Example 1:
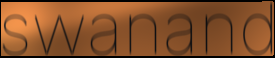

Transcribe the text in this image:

swanand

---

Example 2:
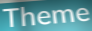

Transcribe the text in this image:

Theme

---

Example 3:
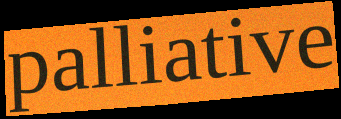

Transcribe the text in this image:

palliative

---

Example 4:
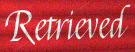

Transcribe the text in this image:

Retrieved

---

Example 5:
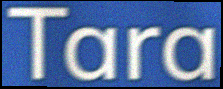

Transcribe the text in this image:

Tara